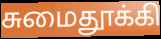
சுமைதூக்கி